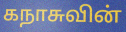
கநாசுவின்